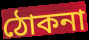
ঠোকনা